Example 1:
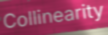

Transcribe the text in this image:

Collinearity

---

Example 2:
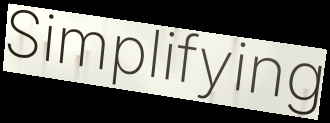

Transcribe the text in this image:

Simplifying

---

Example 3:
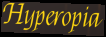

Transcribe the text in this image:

Hyperopia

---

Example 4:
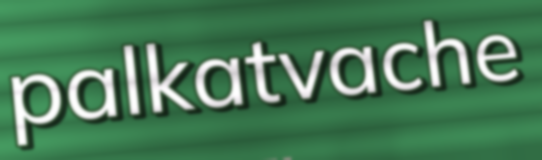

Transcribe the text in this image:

palkatvache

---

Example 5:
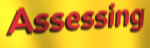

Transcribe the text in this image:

Assessing